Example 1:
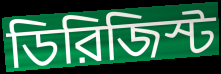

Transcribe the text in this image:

ডিরিজিস্ট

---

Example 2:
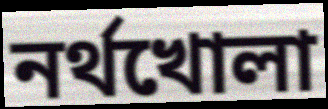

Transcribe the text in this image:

নর্থখোলা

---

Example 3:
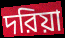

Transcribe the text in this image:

দরিয়া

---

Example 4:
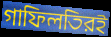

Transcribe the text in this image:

গাফিলতিরই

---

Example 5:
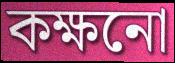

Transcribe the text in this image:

কক্ষনো